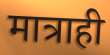
मात्राही